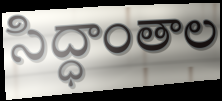
సిద్ధాంతాల